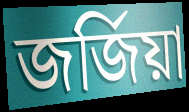
জর্জিয়া